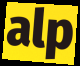
alp